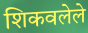
शिकवलेले